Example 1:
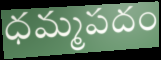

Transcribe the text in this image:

ధమ్మపదం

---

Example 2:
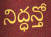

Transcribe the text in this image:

నిద్ధన్తో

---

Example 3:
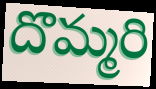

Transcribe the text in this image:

దొమ్మరి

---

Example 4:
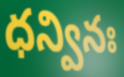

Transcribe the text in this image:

ధన్వినః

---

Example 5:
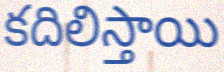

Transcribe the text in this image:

కదిలిస్తాయి